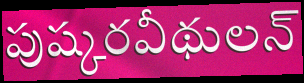
పుష్కరవీథులన్